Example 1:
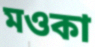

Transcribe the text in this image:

মওকা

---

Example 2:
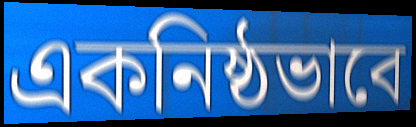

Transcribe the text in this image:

একনিষ্ঠভাবে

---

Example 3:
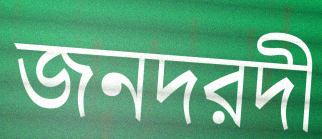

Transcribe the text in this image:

জনদরদী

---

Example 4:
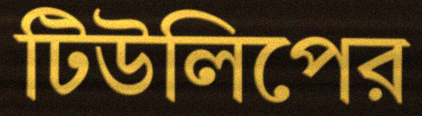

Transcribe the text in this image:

টিউলিপের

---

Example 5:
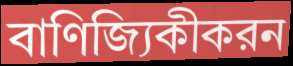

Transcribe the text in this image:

বাণিজ্যিকীকরন